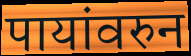
पायांवरुन